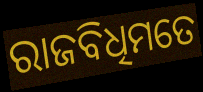
ରାଜବିଧିମତେ